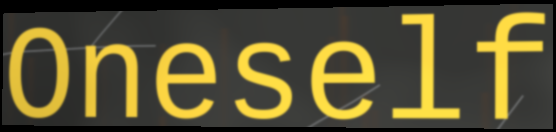
Oneself